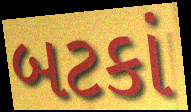
બટકાં